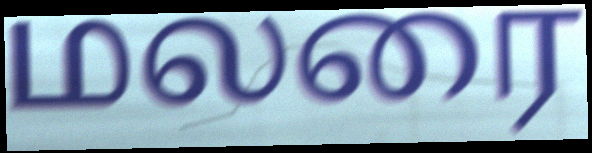
மலரை